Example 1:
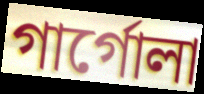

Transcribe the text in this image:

গাৰ্গোলা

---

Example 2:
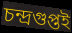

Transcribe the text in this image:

চন্দ্ৰগুপ্তই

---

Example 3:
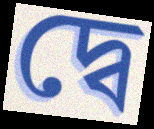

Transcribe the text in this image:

দ্বে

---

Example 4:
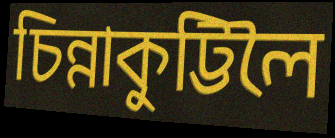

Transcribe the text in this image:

চিন্নাকুট্টিলৈ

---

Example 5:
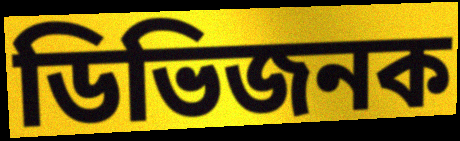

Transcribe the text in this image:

ডিভিজনক